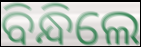
ବିନ୍ଧିଲେ